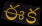
ఈక